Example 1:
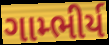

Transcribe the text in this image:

ગામ્ભીર્ય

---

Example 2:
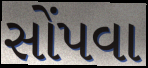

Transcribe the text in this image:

સોંપવા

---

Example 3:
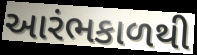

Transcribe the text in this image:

આરંભકાળથી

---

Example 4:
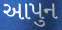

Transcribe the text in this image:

આપુન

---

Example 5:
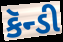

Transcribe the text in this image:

કૅન્ડી